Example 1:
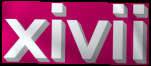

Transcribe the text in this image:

xivii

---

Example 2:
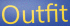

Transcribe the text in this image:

Outfit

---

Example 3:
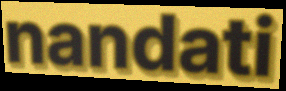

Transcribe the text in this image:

nandati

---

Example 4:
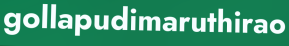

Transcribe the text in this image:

gollapudimaruthirao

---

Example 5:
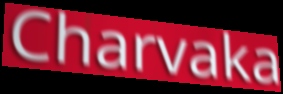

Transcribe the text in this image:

Charvaka